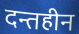
दन्तहीन